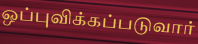
ஒப்புவிக்கப்படுவார்